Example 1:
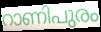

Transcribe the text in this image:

റാണിപുരം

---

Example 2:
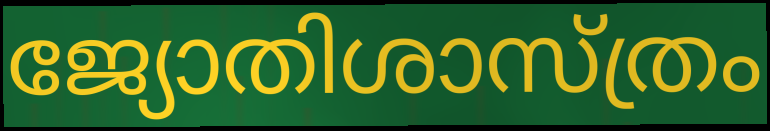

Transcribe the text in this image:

ജ്യോതിശാസ്ത്രം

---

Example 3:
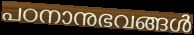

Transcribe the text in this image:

പഠനാനുഭവങ്ങൾ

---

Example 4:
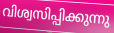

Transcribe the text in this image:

വിശ്വസിപ്പിക്കുന്നു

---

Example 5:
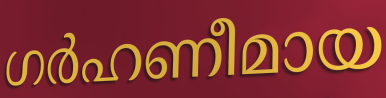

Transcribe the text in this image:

ഗർഹണീമായ